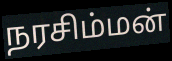
நரசிம்மன்